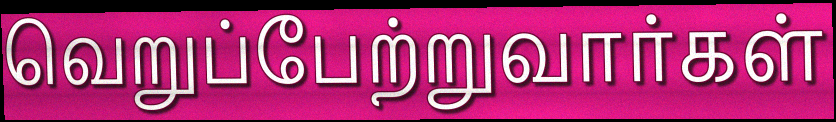
வெறுப்பேற்றுவார்கள்